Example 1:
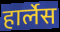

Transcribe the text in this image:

हार्लेस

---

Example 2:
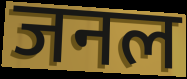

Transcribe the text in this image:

जनल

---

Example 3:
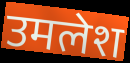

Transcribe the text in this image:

उमलेश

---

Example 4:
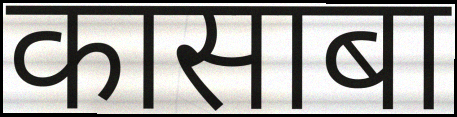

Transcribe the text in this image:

कासाबा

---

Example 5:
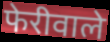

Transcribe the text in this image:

फेरीवाले